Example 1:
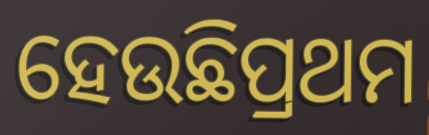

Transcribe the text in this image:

ହେଉଛିପ୍ରଥମ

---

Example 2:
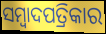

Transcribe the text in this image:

ସମ୍ବାଦପତ୍ରିକାର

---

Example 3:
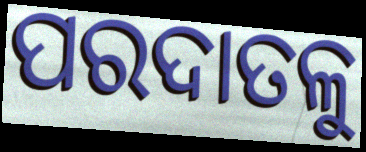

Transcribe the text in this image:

ପରଦାତଳୁ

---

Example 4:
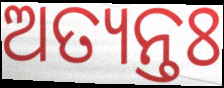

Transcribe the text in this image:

ଅତ୍ୟନ୍ତଃ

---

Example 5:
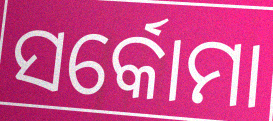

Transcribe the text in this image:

ସର୍କୋମା